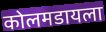
कोलमडायला